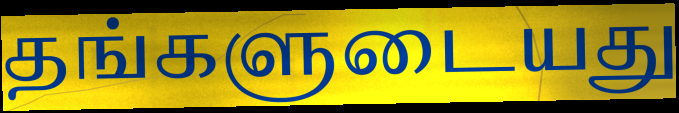
தங்களுடையது